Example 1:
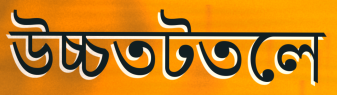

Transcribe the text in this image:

উচ্চতটতলে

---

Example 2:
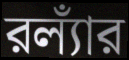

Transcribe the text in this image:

রল্যাঁর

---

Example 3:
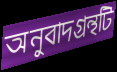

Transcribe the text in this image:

অনুবাদগ্রন্থটি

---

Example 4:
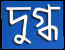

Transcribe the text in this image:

দুগ্ধ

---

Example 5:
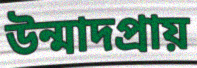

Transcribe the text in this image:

উন্মাদপ্রায়